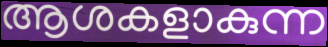
ആശകളാകുന്ന